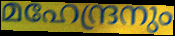
മഹേന്ദ്രനും